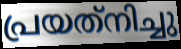
പ്രയത്‌നിച്ചു